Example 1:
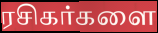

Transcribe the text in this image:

ரசிகர்களை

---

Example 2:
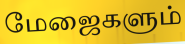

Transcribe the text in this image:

மேஜைகளும்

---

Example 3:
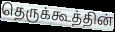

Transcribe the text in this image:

தெருக்கூத்தின்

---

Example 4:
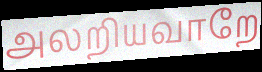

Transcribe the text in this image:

அலறியவாறே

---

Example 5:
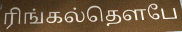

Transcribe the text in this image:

ரிங்கல்தௌபே